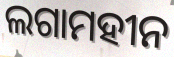
ଲଗାମହୀନ